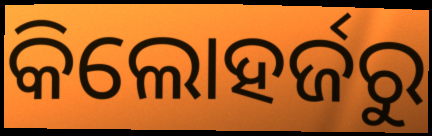
କିଲୋହର୍ଜରୁ